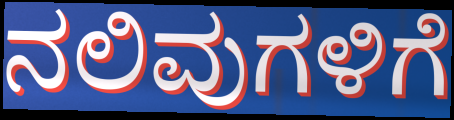
ನಲಿವುಗಳಿಗೆ